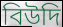
বিউদি